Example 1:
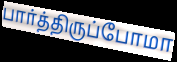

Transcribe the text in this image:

பார்த்திருப்போமா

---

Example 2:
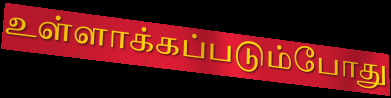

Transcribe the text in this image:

உள்ளாக்கப்படும்போது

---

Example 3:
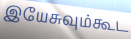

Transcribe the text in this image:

இயேசுவும்கூட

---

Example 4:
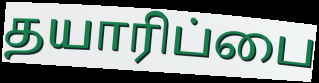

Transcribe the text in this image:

தயாரிப்பை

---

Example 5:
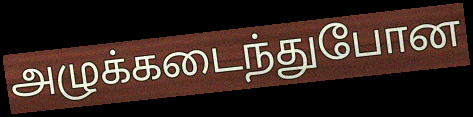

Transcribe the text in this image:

அழுக்கடைந்துபோன